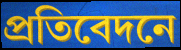
প্ৰতিবেদনে